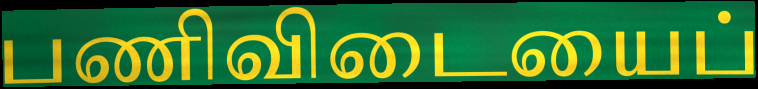
பணிவிடையைப்